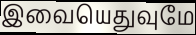
இவையெதுவுமே